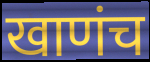
खाणंच